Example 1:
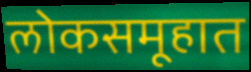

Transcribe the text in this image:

लोकसमूहात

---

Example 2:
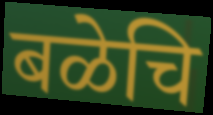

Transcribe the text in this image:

बळेचि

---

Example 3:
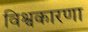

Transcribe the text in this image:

विश्वकारणा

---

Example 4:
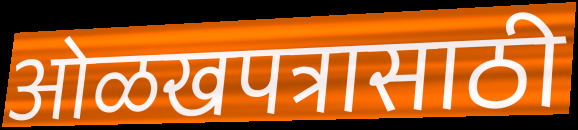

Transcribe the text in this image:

ओळखपत्रासाठी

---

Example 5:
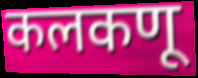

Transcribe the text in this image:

कलकणू